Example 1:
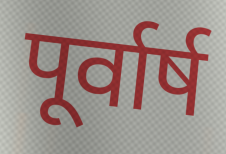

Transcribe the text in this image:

पूर्वार्ष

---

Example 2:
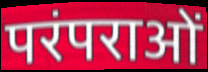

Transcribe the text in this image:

परंपराओं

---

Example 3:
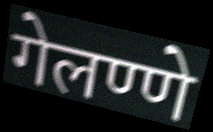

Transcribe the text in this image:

गेलण्णे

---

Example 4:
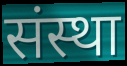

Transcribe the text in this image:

संस्था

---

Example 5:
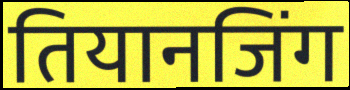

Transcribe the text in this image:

तियानजिंग